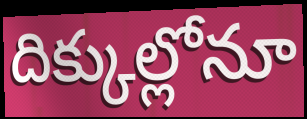
దిక్కుల్లోనూ